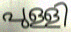
പുള്ളി